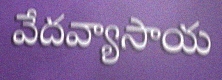
వేదవ్యాసాయ